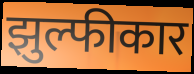
झुल्फीकार